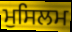
ਮੁਸਿਲਮ